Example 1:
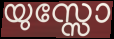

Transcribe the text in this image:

യുസ്സോ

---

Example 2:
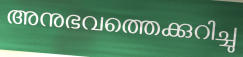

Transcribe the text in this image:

അനുഭവത്തെക്കുറിച്ചു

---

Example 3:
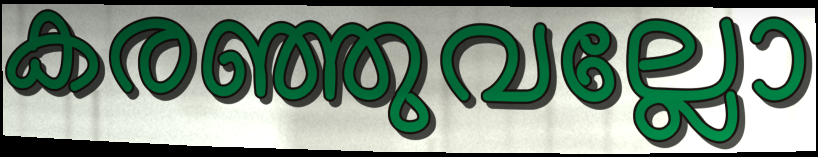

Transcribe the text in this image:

കരഞ്ഞുവല്ലോ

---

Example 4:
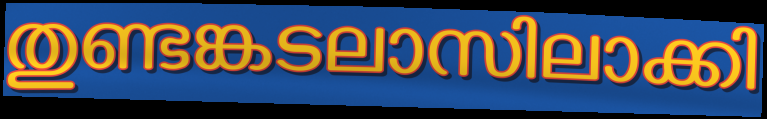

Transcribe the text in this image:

തുണ്ടങ്കടലാസിലാക്കി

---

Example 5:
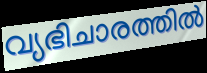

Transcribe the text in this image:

വ്യഭിചാരത്തിൽ